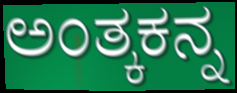
ಅಂತ್ಕಕನ್ನ